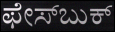
ಫೇಸ್‌ಬುಕ್